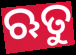
ଋତୁ